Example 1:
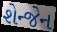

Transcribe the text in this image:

શેન્જેન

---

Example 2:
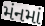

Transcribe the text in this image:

મંનમાં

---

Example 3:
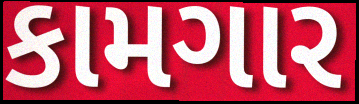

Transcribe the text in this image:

કામગાર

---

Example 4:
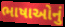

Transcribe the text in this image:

ભાષાઓનું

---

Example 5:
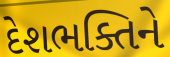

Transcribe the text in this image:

દેશભક્તિને